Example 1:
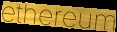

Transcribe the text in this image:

ethereum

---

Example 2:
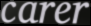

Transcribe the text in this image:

carer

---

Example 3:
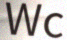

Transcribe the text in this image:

Wc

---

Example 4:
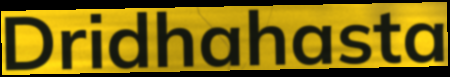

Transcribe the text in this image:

Dridhahasta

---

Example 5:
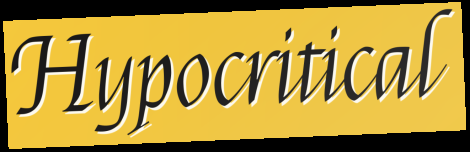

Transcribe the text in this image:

Hypocritical